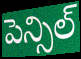
పెన్సిల్